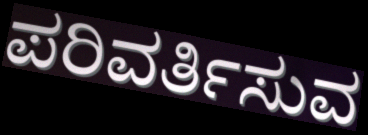
ಪರಿವರ್ತಿಸುವ